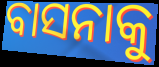
ବାସନାକୁ